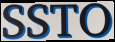
SSTO